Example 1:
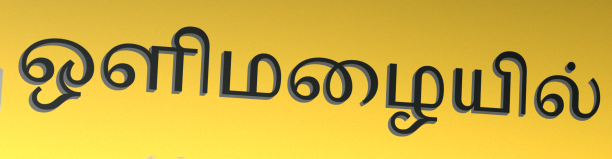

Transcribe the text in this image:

ஒளிமழையில்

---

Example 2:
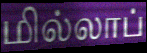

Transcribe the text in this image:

மில்லாப்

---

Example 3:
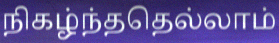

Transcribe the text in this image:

நிகழ்ந்ததெல்லாம்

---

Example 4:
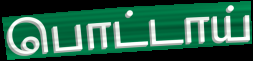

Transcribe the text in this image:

பொட்டாய்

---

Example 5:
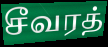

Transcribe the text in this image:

சீவரத்